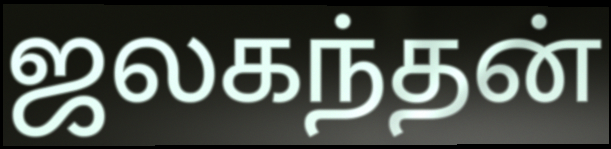
ஜலகந்தன்